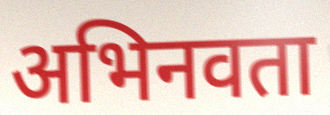
अभिनवता